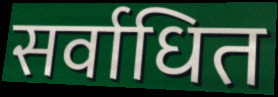
सर्वाधित